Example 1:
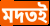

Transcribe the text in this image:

মদতই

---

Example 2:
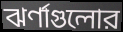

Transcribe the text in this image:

ঝর্ণাগুলোর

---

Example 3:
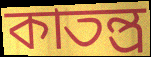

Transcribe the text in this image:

কাতন্ত্র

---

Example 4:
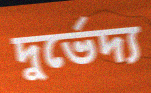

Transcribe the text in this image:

দুর্ভেদ্য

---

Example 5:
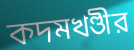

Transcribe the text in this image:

কদমখণ্ডীর